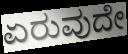
ಏರುವುದೇ